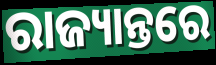
ରାଜ୍ୟାନ୍ତରେ